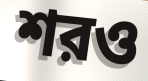
শরও